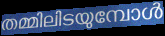
തമ്മിലിടയുമ്പോൾ